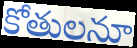
కోతులనూ